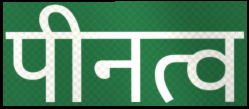
पीनत्व